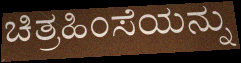
ಚಿತ್ರಹಿಂಸೆಯನ್ನು